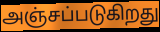
அஞ்சப்படுகிறது